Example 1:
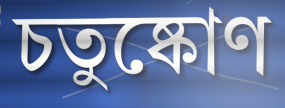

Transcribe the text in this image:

চতুষ্কোণ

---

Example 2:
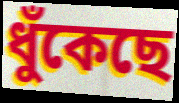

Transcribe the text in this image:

ধুঁকেছে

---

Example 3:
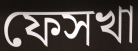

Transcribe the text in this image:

ফেসখা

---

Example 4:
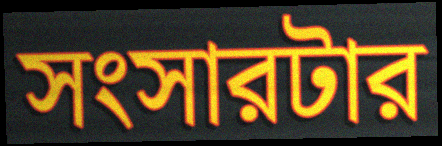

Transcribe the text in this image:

সংসারটার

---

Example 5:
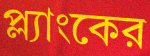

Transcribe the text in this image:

প্ল্যাংকের